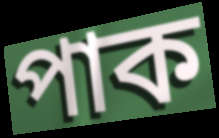
পাক